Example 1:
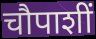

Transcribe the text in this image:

चौपाशीं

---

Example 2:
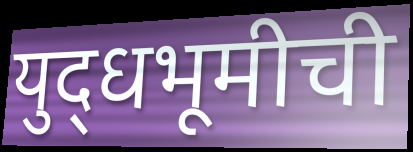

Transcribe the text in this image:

युद्धभूमीची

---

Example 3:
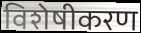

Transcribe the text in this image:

विशेषीकरण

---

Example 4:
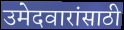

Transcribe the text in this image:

उमेदवारांसाठी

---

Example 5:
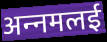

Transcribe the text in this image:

अन्नमलई